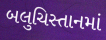
બલુચિસ્તાનમાં